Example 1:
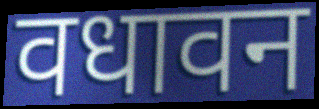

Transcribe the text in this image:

वधावन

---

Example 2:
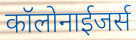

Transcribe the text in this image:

कॉलोनाईजर्स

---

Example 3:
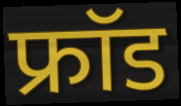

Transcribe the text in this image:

फ्रॉड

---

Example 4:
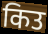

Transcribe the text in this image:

किउ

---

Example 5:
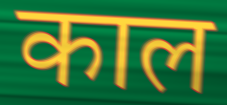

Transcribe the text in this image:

काल